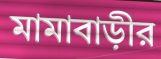
মামাবাড়ীর